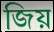
জিয়